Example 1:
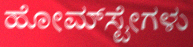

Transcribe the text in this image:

ಹೋಮ್‌ಸ್ಟೇಗಳು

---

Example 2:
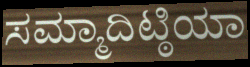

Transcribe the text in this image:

ಸಮ್ಮಾದಿಟ್ಠಿಯಾ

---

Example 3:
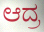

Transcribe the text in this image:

ಆದ್ರ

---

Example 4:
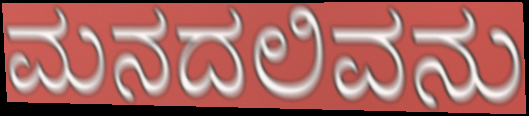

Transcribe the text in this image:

ಮನದಲಿವನು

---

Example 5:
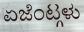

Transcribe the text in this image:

ಏಜೆಂಟ್ಗಳು